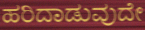
ಹರಿದಾಡುವುದೇ